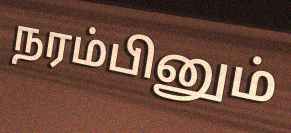
நரம்பினும்